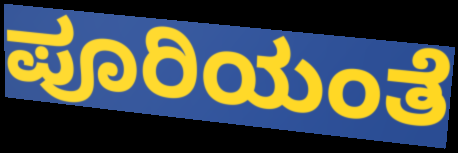
ಪೂರಿಯಂತೆ